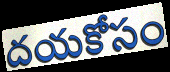
దయకోసం